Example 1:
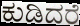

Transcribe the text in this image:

ಕುಡಿದರೆ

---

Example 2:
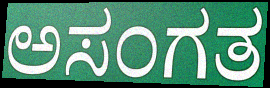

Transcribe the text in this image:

ಅಸಂಗತ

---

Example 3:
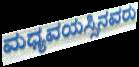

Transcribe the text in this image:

ಮಧ್ಯವಯಸ್ಸಿನವರು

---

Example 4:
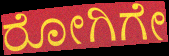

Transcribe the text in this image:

ರೋಗಿಗೇ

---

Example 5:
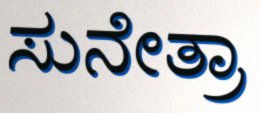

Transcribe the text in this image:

ಸುನೇತ್ರಾ